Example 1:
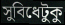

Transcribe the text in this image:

সুবিধেটুকু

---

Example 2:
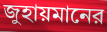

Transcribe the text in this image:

জুহায়মানের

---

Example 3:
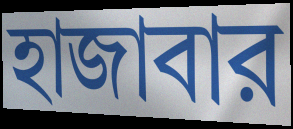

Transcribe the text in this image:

হাজাবার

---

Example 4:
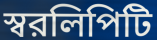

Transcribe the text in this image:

স্বরলিপিটি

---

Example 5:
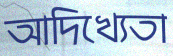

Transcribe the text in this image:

আদিখ্যেতা